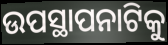
ଉପସ୍ଥାପନାଟିକୁ